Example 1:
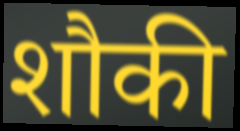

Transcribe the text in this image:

शौकी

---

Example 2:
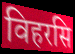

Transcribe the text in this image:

विहरसि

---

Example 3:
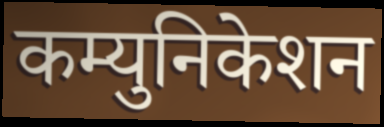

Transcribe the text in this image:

कम्युनिकेशन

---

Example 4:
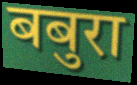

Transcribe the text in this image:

बबुरा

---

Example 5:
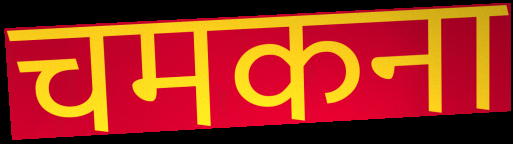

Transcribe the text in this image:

चमकना